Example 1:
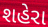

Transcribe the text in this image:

શહેરા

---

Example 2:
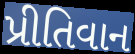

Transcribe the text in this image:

પ્રીતિવાન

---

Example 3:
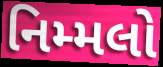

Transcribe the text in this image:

નિમ્મલો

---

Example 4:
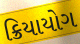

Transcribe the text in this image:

ક્રિયાયોગ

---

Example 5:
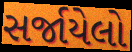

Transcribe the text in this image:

સર્જાયેલો